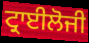
ਟ੍ਰਾਈਲੋਜੀ